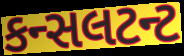
કન્સલટન્ટ